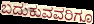
ಬದುಕುವವರಿಗೂ